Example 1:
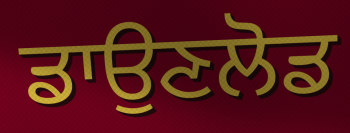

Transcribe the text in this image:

ਡਾਉਣਲੋਡ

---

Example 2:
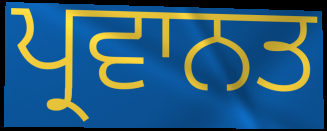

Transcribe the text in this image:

ਪ੍ਰਵਾਨਤ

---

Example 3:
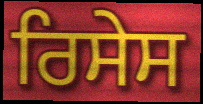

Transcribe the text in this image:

ਰਿਸੇਸ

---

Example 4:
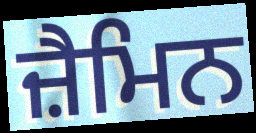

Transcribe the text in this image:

ਜ਼ੈਮਿਨ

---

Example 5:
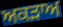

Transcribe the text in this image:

ਅਕੜਾਅ